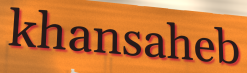
khansaheb